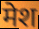
मेश